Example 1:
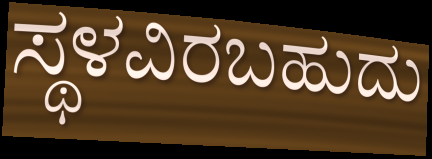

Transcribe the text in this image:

ಸ್ಥಳವಿರಬಹುದು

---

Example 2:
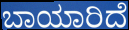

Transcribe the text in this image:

ಬಾಯಾರಿದೆ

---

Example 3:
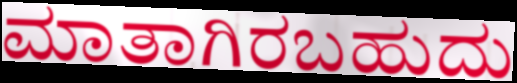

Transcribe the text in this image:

ಮಾತಾಗಿರಬಹುದು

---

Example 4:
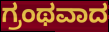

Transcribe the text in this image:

ಗ್ರಂಥವಾದ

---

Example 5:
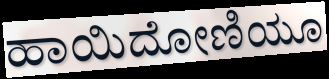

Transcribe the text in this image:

ಹಾಯಿದೋಣಿಯೂ